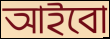
আইবো